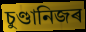
চুণ্ডানিজৰ